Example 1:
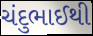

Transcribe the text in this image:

ચંદુભાઈથી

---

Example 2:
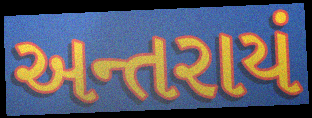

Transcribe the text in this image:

અન્તરાયં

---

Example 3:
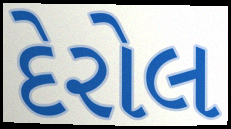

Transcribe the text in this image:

દેરોલ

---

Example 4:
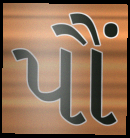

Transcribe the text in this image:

પૌં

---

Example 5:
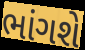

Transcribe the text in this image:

ભાંગશે